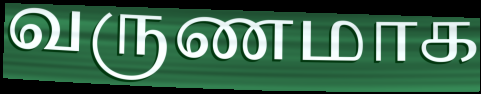
வருணமாக